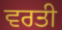
ਵਰਤੀ